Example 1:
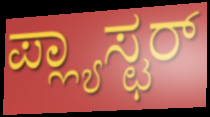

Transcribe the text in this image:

ಪ್ಲ್ಯಾಸ್ಟರ್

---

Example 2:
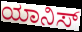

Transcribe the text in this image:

ಯಾನಿಸ್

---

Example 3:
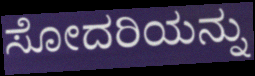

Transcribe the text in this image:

ಸೋದರಿಯನ್ನು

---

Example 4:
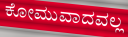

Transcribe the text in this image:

ಕೋಮುವಾದವಲ್ಲ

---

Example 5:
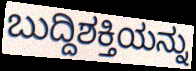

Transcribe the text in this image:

ಬುದ್ದಿಶಕ್ತಿಯನ್ನು